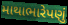
માથાભારેપણું